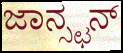
ಜಾನ್ಸ್ಟನ್